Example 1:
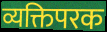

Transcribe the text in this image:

व्यक्तिपरक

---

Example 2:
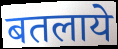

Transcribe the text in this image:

बतलाये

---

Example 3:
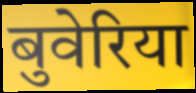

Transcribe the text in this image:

बुवेरिया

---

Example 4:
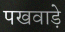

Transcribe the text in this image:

पखवाड़े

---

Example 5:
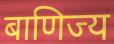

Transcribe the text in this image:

बाणिज्य